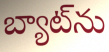
బ్యాట్‌ను